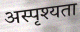
अस्पृश्यता